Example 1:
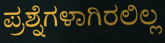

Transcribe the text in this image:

ಪ್ರಶ್ನೆಗಳಾಗಿರಲಿಲ್ಲ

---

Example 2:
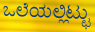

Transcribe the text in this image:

ಒಲೆಯಲ್ಲಿಟ್ಟು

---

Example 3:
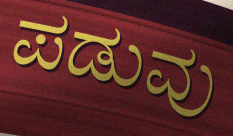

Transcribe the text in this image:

ಪಡುವು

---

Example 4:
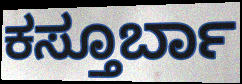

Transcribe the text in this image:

ಕಸ್ತೂರ್ಬಾ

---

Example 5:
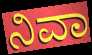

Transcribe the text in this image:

ನಿವಾ